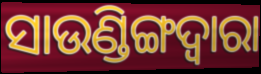
ସାଉଣ୍ଡିଙ୍ଗଦ୍ୱାରା